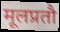
मूलप्रतौ